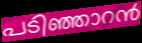
പടിഞ്ഞാറൻ